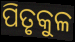
ପିତୃକୁଳ